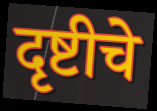
दृष्टीचे